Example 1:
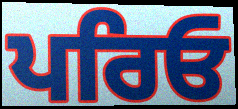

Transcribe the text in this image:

ਪਰਿਓ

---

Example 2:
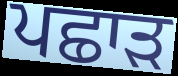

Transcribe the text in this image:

ਪਛਾੜ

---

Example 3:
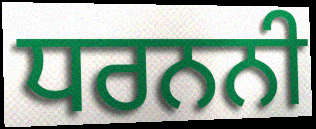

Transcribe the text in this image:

ਧਰਨਨੀ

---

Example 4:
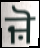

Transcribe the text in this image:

ਜ਼ੋ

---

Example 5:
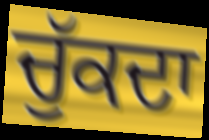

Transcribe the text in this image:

ਚੁੱਕਦਾ